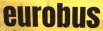
eurobus